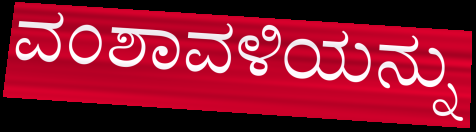
ವಂಶಾವಳಿಯನ್ನು